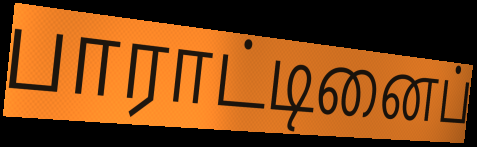
பாராட்டினைப்